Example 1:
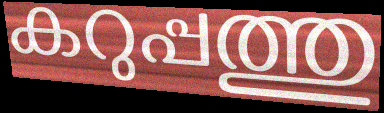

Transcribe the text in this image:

കറുപ്പത്തു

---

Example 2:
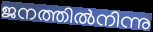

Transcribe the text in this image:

ജനത്തിൽനിന്നു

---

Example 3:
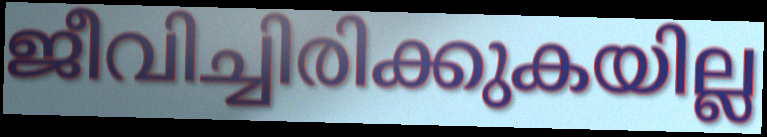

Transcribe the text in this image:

ജീവിച്ചിരിക്കുകയില്ല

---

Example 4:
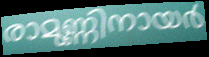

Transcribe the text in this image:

രാമുണ്ണിനായർ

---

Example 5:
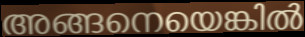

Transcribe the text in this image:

അങ്ങനെയെങ്കിൽ